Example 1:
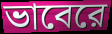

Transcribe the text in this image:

ভাবেরে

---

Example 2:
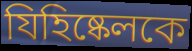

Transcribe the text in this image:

যিহিষ্কেলকে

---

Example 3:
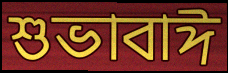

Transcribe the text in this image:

শুভাবাঈ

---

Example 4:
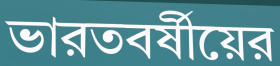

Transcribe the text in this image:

ভারতবর্ষীয়ের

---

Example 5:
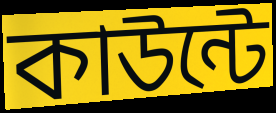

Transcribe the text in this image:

কাউন্টে